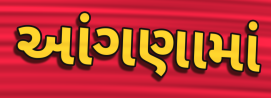
આંગણામાં